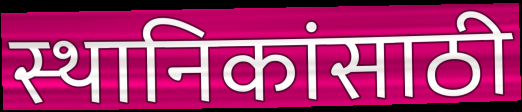
स्थानिकांसाठी